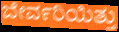
ಬೇರ್ವರಿಯಿತ್ತು